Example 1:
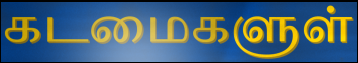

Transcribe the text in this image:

கடமைகளுள்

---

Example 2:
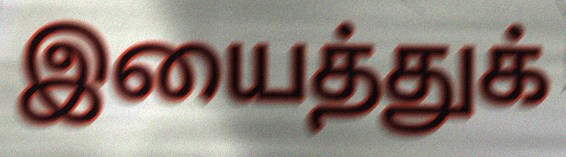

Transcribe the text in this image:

இயைத்துக்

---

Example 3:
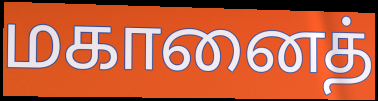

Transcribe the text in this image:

மகானைத்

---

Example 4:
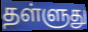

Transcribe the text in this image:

தள்ளுது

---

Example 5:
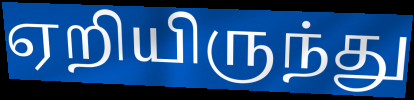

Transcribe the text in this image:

ஏறியிருந்து